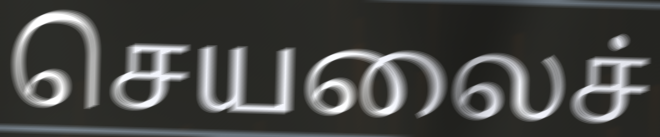
செயலைச்